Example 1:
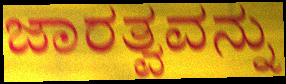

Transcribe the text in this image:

ಜಾರತ್ವವನ್ನು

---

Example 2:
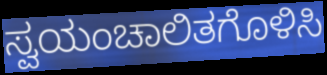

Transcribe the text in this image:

ಸ್ವಯಂಚಾಲಿತಗೊಳಿಸಿ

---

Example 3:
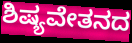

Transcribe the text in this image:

ಶಿಷ್ಯವೇತನದ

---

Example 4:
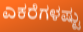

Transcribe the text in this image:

ಎಕರೆಗಳಷ್ಟು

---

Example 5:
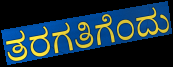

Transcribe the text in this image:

ತರಗತಿಗೆಂದು